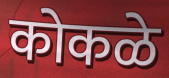
कोकळे